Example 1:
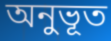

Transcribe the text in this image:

অনুভূত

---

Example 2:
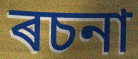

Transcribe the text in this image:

ৰচনা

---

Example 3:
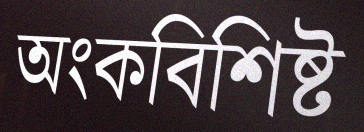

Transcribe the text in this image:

অংকবিশিষ্ট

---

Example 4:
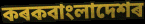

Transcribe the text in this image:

কৰকবাংলাদেশৰ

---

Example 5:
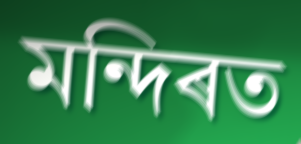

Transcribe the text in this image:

মন্দিৰত